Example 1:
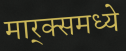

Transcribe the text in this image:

मार्क्समध्ये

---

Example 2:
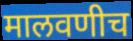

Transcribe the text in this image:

मालवणीच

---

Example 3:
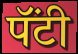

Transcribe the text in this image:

पॅंटी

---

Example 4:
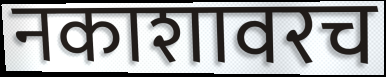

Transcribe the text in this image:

नकाशावरच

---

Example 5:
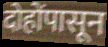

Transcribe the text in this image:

दोहोंपासून